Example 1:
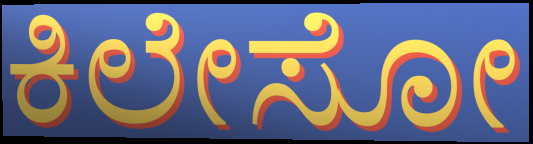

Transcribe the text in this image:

ಕಿಲೇಸೋ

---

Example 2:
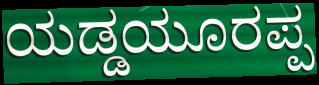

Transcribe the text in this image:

ಯಡ್ಡಯೂರಪ್ಪ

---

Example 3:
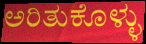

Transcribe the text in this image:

ಅರಿತುಕೊಳ್ಳು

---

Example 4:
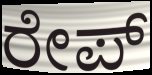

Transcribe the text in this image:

ರೇಪ್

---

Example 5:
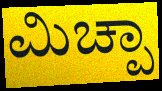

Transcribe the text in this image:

ಮಿಚ್ಪಾ